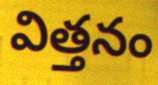
విత్తనం